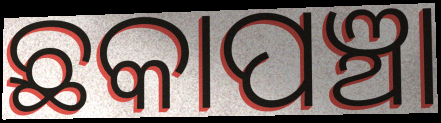
ଛକାପଞ୍ଚା